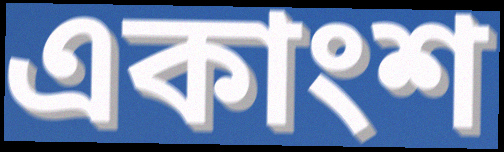
একাংশ